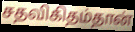
சதவிகிதம்தான்